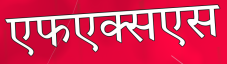
एफएक्सएस